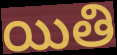
యితి